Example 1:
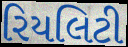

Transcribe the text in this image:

રિયલિટી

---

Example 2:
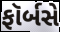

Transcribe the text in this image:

ફૉર્બસે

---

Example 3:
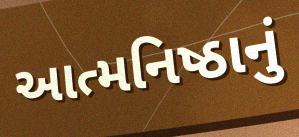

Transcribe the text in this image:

આત્મનિષ્ઠાનું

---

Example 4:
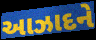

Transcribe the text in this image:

આઝાદને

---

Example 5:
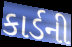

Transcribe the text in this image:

કાર્ડની